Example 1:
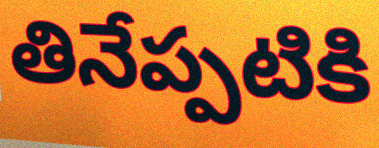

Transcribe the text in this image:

తినేప్పటికి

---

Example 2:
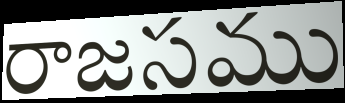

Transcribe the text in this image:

రాజసము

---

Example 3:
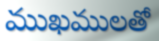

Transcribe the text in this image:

ముఖములతో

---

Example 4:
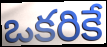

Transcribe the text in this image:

ఒకరికే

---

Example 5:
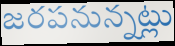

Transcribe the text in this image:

జరపనున్నట్లు